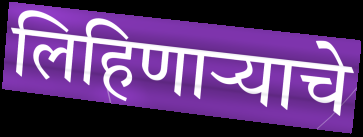
लिहिणाऱ्याचे